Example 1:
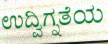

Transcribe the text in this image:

ಉದ್ವಿಗ್ನತೆಯ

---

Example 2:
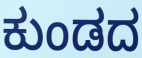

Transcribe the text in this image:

ಕುಂಡದ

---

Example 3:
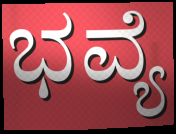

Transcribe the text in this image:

ಭವ್ಯೆ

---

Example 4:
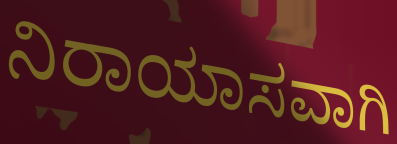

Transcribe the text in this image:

ನಿರಾಯಾಸವಾಗಿ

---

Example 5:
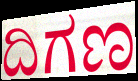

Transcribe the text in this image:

ದಿಗಣ